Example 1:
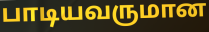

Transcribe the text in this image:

பாடியவருமான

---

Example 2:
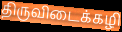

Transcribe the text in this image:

திருவிடைக்கழி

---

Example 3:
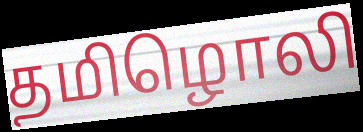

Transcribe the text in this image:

தமிழொலி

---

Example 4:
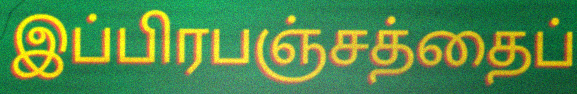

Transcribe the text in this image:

இப்பிரபஞ்சத்தைப்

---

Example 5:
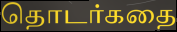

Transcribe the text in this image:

தொடர்கதை